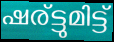
ഷര്ട്ടുമിട്ട്